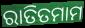
ରାତିତମାମ